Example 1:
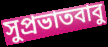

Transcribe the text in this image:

সুপ্রভাতবাবু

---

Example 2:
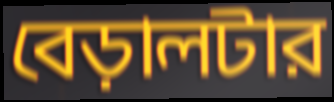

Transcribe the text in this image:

বেড়ালটার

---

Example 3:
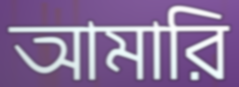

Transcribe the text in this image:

আমারি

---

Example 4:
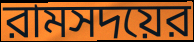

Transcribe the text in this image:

রামসদয়ের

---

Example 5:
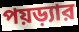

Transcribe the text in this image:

পয়ড়্যার